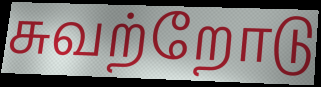
சுவற்றோடு